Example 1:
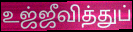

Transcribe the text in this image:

உஜ்ஜீவித்துப்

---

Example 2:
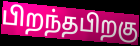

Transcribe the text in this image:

பிறந்தபிறகு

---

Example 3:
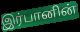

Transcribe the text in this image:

இர்பானின்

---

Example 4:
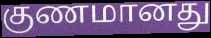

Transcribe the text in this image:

குணமானது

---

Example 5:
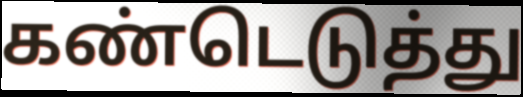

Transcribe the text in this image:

கண்டெடுத்து